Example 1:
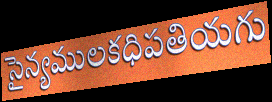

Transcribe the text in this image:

సైన్యములకధిపతియగు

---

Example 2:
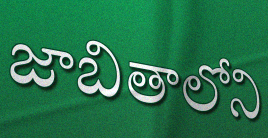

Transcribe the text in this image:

జాబితాలోని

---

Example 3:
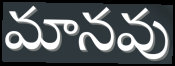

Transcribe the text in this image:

మానవు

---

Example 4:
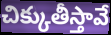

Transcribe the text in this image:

చిక్కుతీస్తావే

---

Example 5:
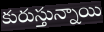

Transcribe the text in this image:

కురుస్తున్నాయి